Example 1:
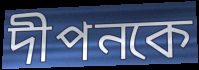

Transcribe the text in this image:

দীপনকে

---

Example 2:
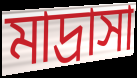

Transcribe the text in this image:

মাদ্রাসা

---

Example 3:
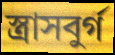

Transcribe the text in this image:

স্ত্রাসবুর্গ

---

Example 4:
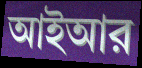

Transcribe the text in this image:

আইআর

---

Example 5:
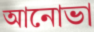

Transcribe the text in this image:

আনোভা